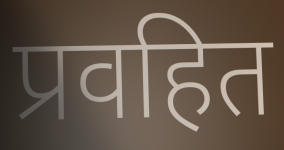
प्रवहित